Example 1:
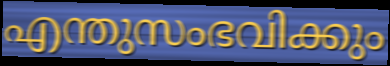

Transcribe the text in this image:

എന്തുസംഭവിക്കും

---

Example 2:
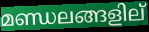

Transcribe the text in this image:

മണ്ഡലങ്ങളില്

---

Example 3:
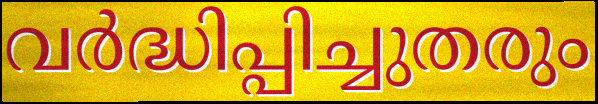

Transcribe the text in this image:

വർദ്ധിപ്പിച്ചുതരും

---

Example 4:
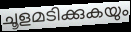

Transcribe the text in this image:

ചൂളമടിക്കുകയും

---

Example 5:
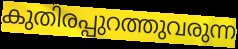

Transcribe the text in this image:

കുതിരപ്പുറത്തുവരുന്ന